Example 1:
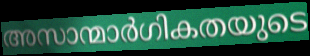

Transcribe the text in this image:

അസാന്മാർഗികതയുടെ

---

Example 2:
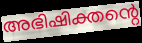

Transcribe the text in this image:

അഭിഷിക്തന്റെ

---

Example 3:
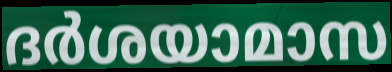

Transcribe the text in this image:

ദർശയാമാസ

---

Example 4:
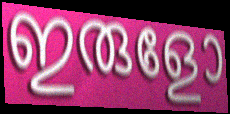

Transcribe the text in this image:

ഇരുളോ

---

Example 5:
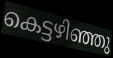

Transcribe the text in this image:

കെട്ടഴിഞ്ഞു